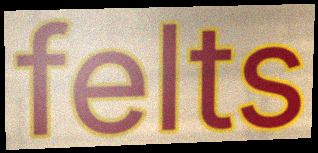
felts